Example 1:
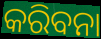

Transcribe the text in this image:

କରିବନା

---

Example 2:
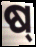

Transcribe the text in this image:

ଷ୍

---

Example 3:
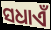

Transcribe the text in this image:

ସଧାଏଁ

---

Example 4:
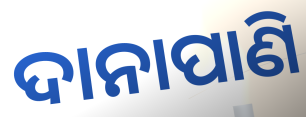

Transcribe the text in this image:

ଦାନାପାଣି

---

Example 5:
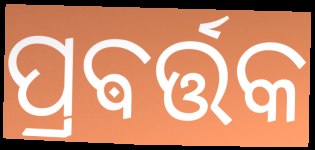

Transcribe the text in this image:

ପ୍ରଵର୍ତ୍ତକ